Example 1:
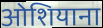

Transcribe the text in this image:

ओशियाना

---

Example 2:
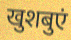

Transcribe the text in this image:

खुशबुएं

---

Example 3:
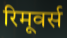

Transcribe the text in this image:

रिमूवर्स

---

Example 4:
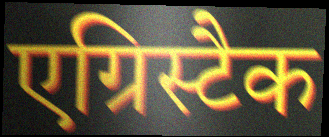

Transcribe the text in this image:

एग्रिस्टैक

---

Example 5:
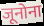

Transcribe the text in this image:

जूनोना